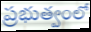
ప్రభుత్వంలో